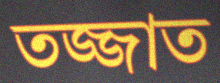
তজ্জাত